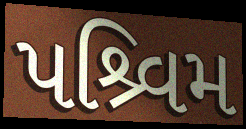
પશ્ર્વિમ